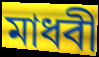
মাধবী